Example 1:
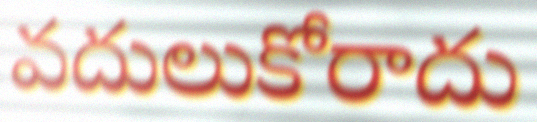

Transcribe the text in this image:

వదులుకోరాదు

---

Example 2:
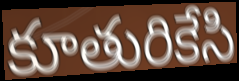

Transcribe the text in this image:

కూతురికేసి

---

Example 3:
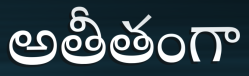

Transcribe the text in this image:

అతీతంగా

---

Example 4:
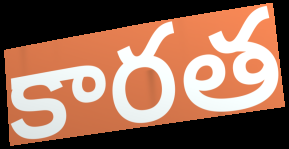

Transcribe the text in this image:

కారత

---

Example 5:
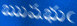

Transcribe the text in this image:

ఋషభుఁ